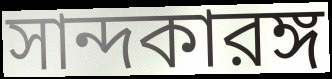
সান্দকারঙ্গ